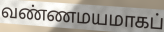
வண்ணமயமாகப்